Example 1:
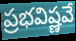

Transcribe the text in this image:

ప్రభవిష్ణవే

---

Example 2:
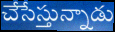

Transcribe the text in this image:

చేసేస్తున్నాడు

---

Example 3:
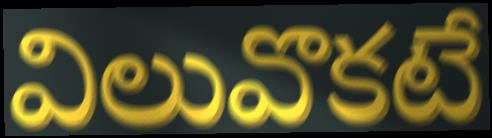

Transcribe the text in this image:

విలువొకటే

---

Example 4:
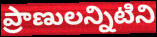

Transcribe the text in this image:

ప్రాణులన్నిటిని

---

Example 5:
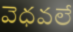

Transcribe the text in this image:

వెధవలే